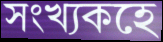
সংখ্যকহে